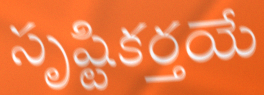
సృష్టికర్తయే